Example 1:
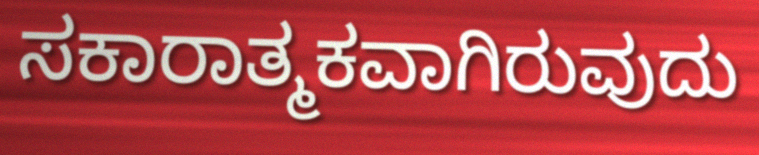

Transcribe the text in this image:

ಸಕಾರಾತ್ಮಕವಾಗಿರುವುದು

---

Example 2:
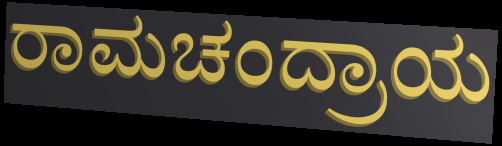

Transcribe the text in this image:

ರಾಮಚಂದ್ರಾಯ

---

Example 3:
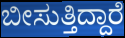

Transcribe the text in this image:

ಬೀಸುತ್ತಿದ್ದಾರೆ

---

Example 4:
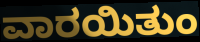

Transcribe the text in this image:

ವಾರಯಿತುಂ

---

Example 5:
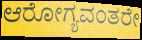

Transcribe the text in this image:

ಆರೋಗ್ಯವಂತರೇ